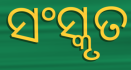
ସଂସ୍କୃତ